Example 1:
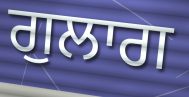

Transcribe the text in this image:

ਗੁਲਾਗ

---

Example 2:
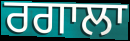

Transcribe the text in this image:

ਰਗਾਲਾ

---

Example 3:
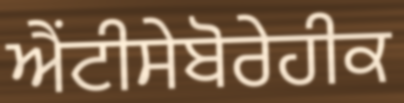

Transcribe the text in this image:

ਐਂਟੀਸੇਬੋਰੇਹੀਕ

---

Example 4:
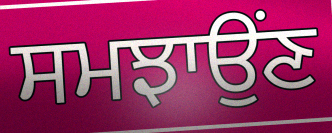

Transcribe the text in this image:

ਸਮਝਾਉਂਣ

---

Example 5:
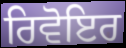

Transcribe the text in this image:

ਰਿਵੋਇਰ